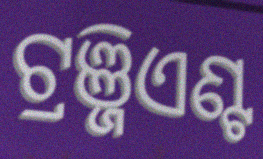
ଟ୍ରଞ୍ଜିଏଣ୍ଟ